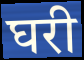
घरी